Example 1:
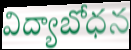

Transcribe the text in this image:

విద్యాబోధన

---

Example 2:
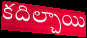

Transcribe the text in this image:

కదిల్చాయి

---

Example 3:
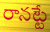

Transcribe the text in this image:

రానట్టే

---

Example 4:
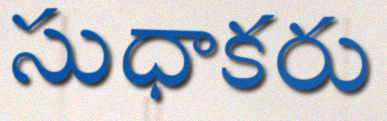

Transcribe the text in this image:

సుధాకరు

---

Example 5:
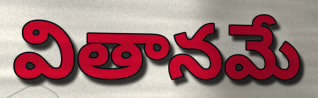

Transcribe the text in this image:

వితానమే